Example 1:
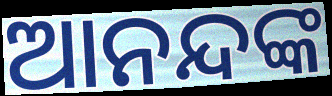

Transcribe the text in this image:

ଆନନ୍ଦଙ୍କ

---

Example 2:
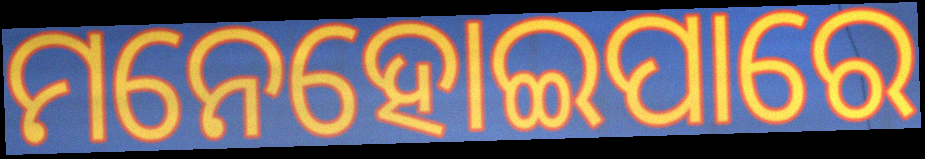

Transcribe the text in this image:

ମନେହୋଇପାରେ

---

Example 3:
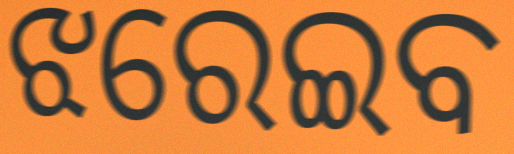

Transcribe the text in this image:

ଝରେଇବ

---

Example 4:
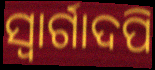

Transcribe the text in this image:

ସ୍ୱାର୍ଗାଦପି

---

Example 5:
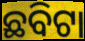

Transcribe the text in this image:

ଛବିଟା